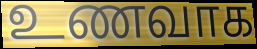
உணவாக